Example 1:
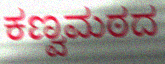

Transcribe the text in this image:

ಕಣ್ವಮಠದ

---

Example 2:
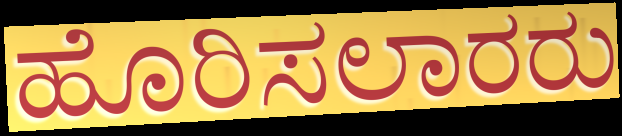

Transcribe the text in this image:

ಹೊರಿಸಲಾರರು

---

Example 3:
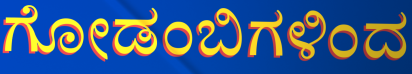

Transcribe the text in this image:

ಗೋಡಂಬಿಗಳಿಂದ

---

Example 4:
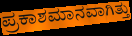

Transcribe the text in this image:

ಪ್ರಕಾಶಮಾನವಾಗಿತ್ತು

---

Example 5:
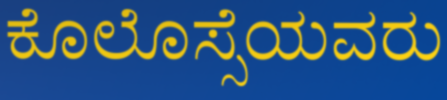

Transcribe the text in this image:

ಕೊಲೊಸ್ಸೆಯವರು